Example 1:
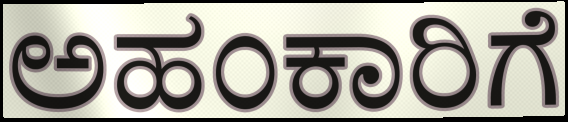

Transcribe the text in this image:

ಅಹಂಕಾರಿಗೆ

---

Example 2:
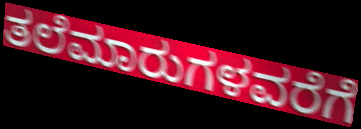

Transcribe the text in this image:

ತಲೆಮಾರುಗಳವರೆಗೆ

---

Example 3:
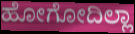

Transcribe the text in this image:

ಹೋಗೋದಿಲ್ಲಾ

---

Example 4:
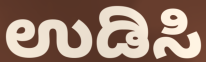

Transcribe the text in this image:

ಉಡಿಸಿ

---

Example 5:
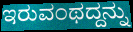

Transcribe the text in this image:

ಇರುವಂಥದ್ದನ್ನು